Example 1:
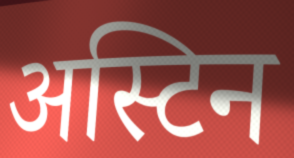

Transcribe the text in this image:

अस्टिन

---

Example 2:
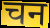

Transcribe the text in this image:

चन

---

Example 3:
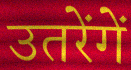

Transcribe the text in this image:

उतरेंगें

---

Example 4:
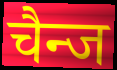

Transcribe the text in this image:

चैन्ज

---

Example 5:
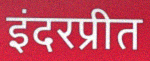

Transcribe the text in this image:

इंदरप्रीत